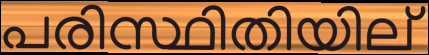
പരിസ്ഥിതിയില്